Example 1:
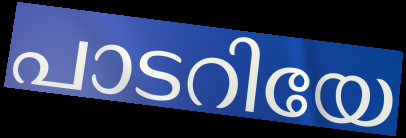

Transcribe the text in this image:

പാടറിയേ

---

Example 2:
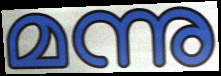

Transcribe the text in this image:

മന്നു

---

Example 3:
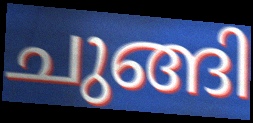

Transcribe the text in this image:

ചുങ്ങി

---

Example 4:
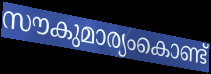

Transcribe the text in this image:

സൗകുമാര്യംകൊണ്ട്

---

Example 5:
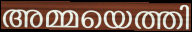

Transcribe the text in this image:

അമ്മയെത്തി